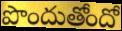
పొందుతోందో